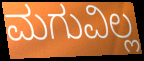
ಮಗುವಿಲ್ಲ